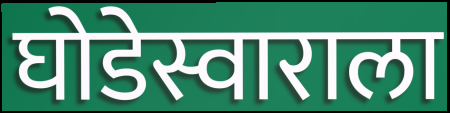
घोडेस्वाराला